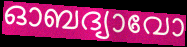
ഓബദ്യാവോ